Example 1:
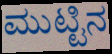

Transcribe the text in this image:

ಮುಟ್ಟಿನ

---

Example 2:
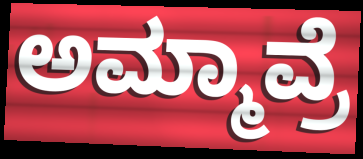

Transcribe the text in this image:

ಅಮ್ಮಾವ್ರೆ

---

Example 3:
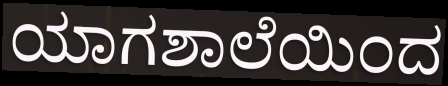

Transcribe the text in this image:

ಯಾಗಶಾಲೆಯಿಂದ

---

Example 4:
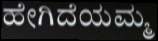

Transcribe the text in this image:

ಹೇಗಿದೆಯಮ್ಮ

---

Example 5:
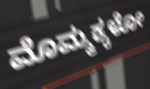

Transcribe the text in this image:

ಮೊಮ್ಮಕ್ಕಳೋ